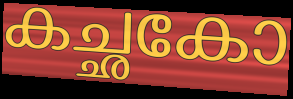
കച്ഛകോ